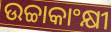
ଉଚ୍ଚାକାଂକ୍ଷୀ